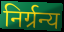
निर्ग्रन्य